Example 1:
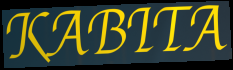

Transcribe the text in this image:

KABITA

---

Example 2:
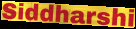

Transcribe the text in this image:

Siddharshi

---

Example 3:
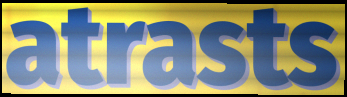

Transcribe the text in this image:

atrasts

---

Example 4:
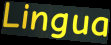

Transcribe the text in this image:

Lingua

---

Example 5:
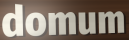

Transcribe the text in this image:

domum